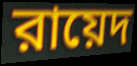
রায়েদ